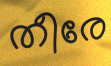
തീരേ